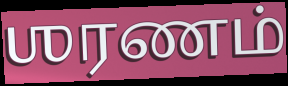
ஶரணம்